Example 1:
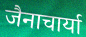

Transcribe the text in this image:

जैनाचार्या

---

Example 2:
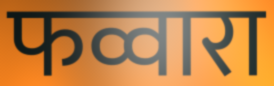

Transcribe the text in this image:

फव्वारा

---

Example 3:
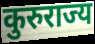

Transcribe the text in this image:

कुरुराज्य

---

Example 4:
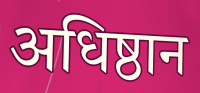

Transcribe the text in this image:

अधिष्ठान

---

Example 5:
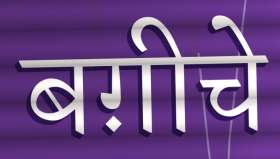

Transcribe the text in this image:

बग़ीचे